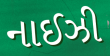
નાઈઝી